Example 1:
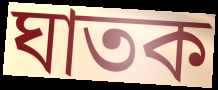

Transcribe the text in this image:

ঘাতক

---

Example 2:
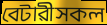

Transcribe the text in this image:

বেটাৱীসকল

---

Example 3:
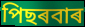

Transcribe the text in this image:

পিছৰবাৰ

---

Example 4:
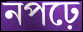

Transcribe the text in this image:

নপঢ়ে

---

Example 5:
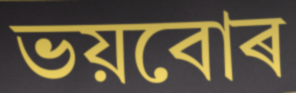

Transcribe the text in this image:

ভয়বোৰ